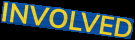
INVOLVED